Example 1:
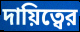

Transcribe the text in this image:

দায়িত্বের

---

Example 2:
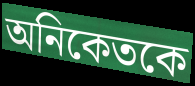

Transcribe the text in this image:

অনিকেতকে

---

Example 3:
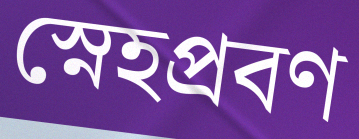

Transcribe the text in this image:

স্নেহপ্রবণ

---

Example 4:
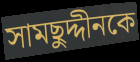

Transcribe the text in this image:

সামছুদ্দীনকে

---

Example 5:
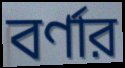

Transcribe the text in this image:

বর্ণার